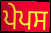
ਪੇਪਸ